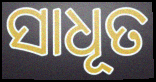
ସାଧୂତ